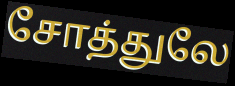
சோத்துலே